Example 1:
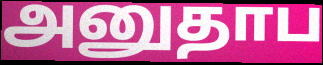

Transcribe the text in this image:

அனுதாப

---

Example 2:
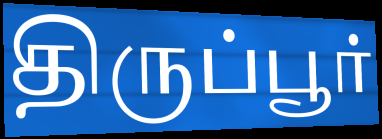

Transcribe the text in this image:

திருப்பூர்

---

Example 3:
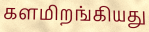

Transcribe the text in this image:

களமிறங்கியது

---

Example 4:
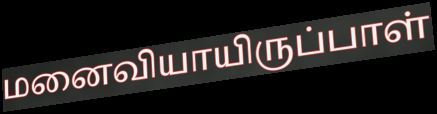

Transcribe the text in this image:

மனைவியாயிருப்பாள்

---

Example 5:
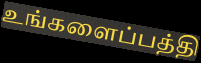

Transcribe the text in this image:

உங்களைப்பத்தி